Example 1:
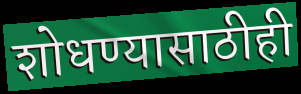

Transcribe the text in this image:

शोधण्यासाठीही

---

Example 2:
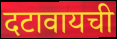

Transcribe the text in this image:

दटावायची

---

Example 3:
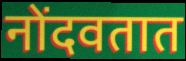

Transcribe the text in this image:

नोंदवतात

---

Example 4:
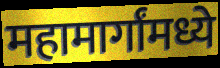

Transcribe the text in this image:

महामार्गांमध्ये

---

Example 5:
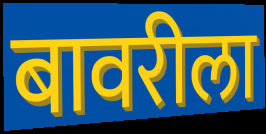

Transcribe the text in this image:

बावरीला